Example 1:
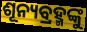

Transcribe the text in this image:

ଶୂନ୍ୟବ୍ରହ୍ମଙ୍କୁ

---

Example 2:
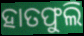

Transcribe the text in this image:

ହାତଫୁଲି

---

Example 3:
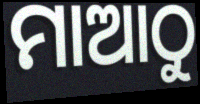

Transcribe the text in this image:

ମାଆଠୁ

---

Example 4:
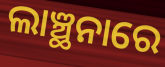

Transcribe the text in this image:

ଲାଞ୍ଛନାରେ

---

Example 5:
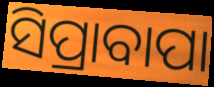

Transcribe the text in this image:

ସିପ୍ରାବାପା